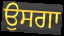
ਉਸਗਾ